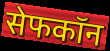
सेफकॉन